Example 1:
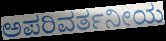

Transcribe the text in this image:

ಅಪರಿವರ್ತನೀಯ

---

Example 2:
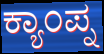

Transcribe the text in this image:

ಕ್ಯಾಂಪ್ನ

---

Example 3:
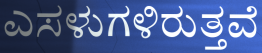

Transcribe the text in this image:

ಎಸಳುಗಳಿರುತ್ತವೆ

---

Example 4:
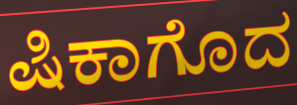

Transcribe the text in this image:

ಷಿಕಾಗೊದ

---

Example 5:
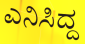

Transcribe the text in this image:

ಎನಿಸಿದ್ದ